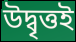
উদ্বৃত্তই